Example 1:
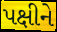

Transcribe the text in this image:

પક્ષીને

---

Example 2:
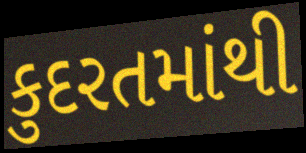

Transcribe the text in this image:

કુદરતમાંથી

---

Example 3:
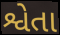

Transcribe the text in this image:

શ્વેતા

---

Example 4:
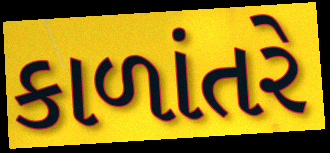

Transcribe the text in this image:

કાળાંતરે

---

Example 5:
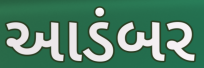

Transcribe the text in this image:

આડંબર